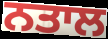
ਨਤਾਲ